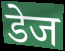
डेज